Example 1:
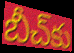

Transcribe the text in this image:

బీచ్‌కు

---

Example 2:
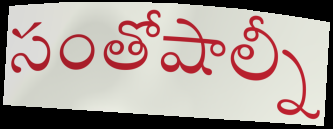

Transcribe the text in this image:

సంతోషాల్నీ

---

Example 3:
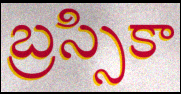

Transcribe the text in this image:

బ్రస్సికా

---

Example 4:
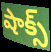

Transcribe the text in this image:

షాక్స్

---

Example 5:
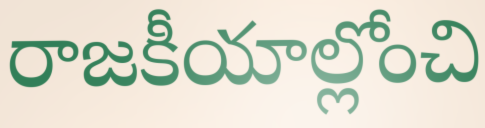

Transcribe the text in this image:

రాజకీయాల్లోంచి